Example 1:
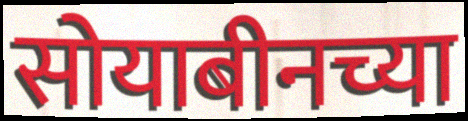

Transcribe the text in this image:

सोयाबीनच्या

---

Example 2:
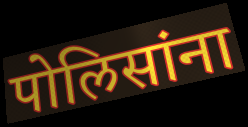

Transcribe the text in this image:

पोलिसांना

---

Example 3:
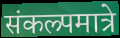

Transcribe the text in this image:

संकल्पमात्रे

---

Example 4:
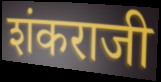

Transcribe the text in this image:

शंकराजी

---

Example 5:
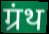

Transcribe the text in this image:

ग्रंथ